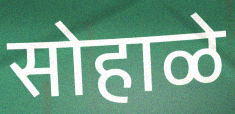
सोहाळे